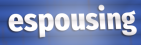
espousing